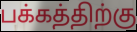
பக்கத்திற்கு